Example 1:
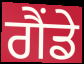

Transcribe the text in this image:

ਗੈਂਡੇ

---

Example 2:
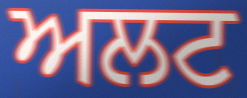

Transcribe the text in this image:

ਅਲਟ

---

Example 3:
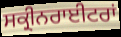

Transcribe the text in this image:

ਸਕ੍ਰੀਨਰਾਈਟਰਾਂ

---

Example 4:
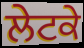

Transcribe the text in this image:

ਲੇਟਕੇ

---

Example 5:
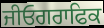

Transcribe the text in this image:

ਜੀਓਗਰਾਫਿਕ